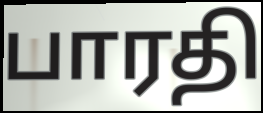
பாரதி